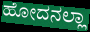
ಹೋದನಲ್ಲಾ